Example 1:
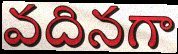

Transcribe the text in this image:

వదినగా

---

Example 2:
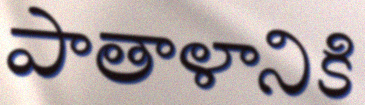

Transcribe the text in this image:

పాతాళానికి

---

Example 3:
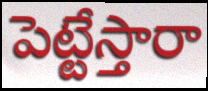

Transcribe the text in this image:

పెట్టేస్తారా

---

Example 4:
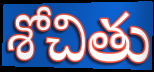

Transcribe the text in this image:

శోచితు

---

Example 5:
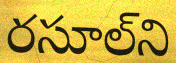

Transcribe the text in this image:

రసూల్‌ని